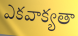
ఎకవాక్యతా